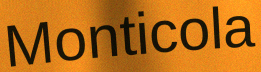
Monticola